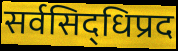
सर्वसिद्धिप्रद